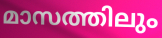
മാസത്തിലും